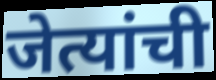
जेत्यांची